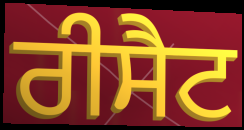
ਰੀਸੈਟ